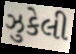
ઝુકેલી